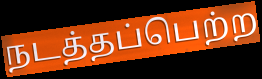
நடத்தப்பெற்ற